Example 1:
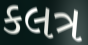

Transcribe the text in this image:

કલત્ર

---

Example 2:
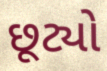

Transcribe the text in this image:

છૂટ્યો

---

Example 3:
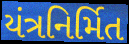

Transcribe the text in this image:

યંત્રનિર્મિત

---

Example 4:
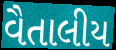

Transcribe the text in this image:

વૈતાલીય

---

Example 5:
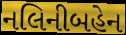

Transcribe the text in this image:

નલિનીબહેન